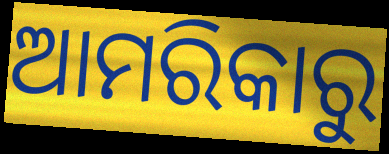
ଆମରିକାରୁ